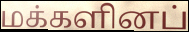
மக்களினப்